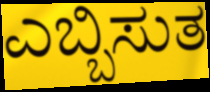
ಎಬ್ಬಿಸುತ